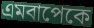
এমবাপেকে